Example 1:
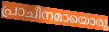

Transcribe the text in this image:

പ്രാചീനമായൊരു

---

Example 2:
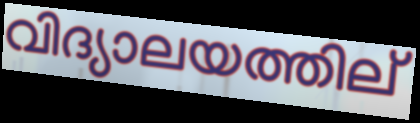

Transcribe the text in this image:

വിദ്യാലയത്തില്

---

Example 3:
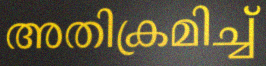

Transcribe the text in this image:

അതിക്രമിച്ച്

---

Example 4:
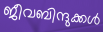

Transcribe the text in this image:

ജീവബിന്ദുക്കൾ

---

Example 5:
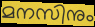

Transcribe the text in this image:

മനസിനും